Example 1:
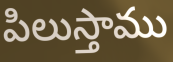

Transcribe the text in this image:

పిలుస్తాము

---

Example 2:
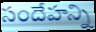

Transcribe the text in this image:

సందేహన్ని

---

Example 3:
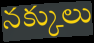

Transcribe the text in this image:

నక్కులు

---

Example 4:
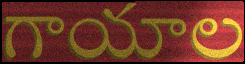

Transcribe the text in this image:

గాయాల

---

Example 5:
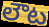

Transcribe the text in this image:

లౌట